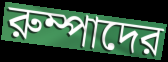
রুম্পাদের